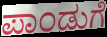
ಪಾಂಡುಗೆ